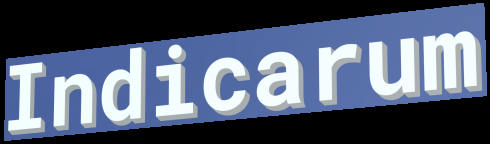
Indicarum